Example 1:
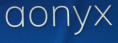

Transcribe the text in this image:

aonyx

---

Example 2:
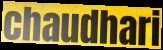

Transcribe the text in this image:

chaudhari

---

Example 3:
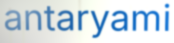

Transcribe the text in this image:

antaryami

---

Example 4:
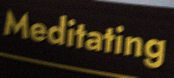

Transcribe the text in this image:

Meditating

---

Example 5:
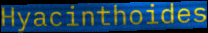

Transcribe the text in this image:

Hyacinthoides